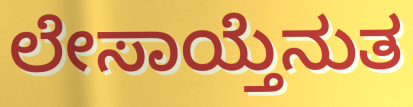
ಲೇಸಾಯ್ತೆನುತ